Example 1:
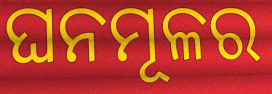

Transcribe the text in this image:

ଘନମୂଳର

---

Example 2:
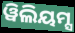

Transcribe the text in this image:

ୱିଲିୟମ୍ସ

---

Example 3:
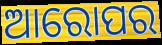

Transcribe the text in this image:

ଆରୋପର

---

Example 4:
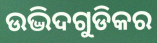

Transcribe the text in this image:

ଉଦ୍ଭିଦଗୁଡିକର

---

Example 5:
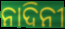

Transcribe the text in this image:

ନାଦିନୀ